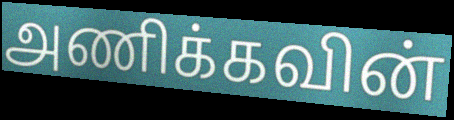
அணிக்கவின்